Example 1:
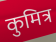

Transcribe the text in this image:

कुमित्र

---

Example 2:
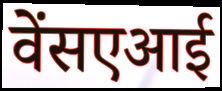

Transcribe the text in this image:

वेंसएआई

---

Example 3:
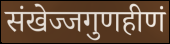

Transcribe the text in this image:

संखेज्जगुणहीणं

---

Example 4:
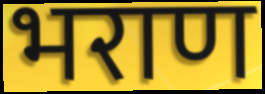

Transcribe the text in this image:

भराण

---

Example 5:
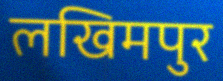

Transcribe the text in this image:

लखिमपुर